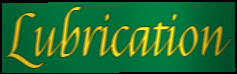
Lubrication